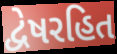
દ્વેષરહિત